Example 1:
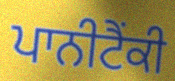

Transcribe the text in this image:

ਪਾਨੀਟੈਂਕੀ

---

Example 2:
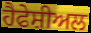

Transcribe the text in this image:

ਹੈਫੇਸ਼ੀਅਲ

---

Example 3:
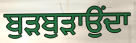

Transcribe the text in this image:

ਬੁੜਬੁੜਾਉਂਦਾ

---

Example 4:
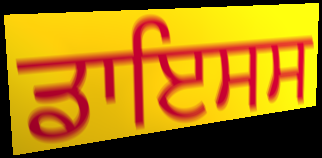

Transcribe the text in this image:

ਡਾਇਸਸ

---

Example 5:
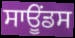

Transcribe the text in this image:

ਸਾਊਂਡਸ